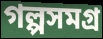
গল্পসমগ্র